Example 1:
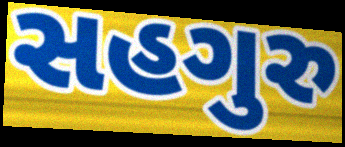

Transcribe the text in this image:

સહગુરુ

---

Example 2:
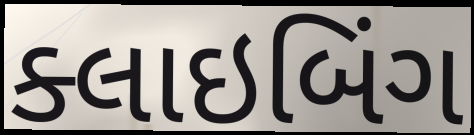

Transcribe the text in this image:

ક્લાઇબિંગ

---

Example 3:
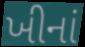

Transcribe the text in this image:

ખીનાં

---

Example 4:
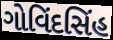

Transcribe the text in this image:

ગોવિંદસિંહ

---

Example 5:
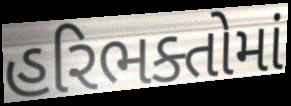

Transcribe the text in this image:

હરિભક્તોમાં